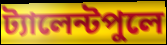
ট্যালেন্টপুলে